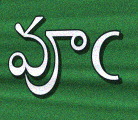
వూఁ